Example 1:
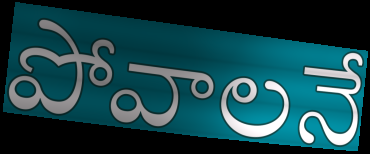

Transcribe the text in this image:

పోవాలనే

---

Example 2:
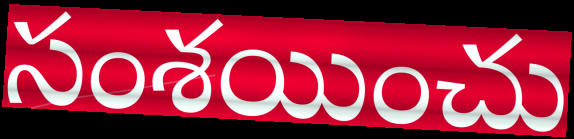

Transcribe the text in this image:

సంశయించు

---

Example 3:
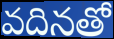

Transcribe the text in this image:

వదినతో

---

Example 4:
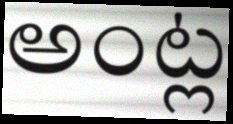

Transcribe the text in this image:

అంట్ల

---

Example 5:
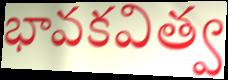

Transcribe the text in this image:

భావకవిత్వ